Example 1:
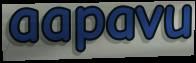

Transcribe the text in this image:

aapavu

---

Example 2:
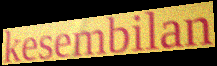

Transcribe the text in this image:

kesembilan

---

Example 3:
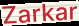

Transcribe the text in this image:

Zarkar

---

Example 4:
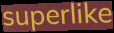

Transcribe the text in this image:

superlike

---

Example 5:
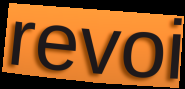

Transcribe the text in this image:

revoi